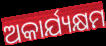
ଅକାର୍ଯ୍ୟକ୍ଷମ